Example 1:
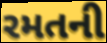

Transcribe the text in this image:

રમતની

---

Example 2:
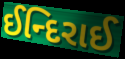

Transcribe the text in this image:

ઈન્દિરાઈ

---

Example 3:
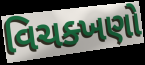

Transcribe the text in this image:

વિચક્ખણો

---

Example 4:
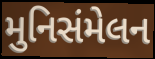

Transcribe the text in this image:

મુનિસંમેલન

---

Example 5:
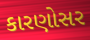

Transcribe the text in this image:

કારણોસર